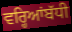
ਵਰ੍ਹਿਆਂਬੱਧੀ